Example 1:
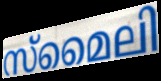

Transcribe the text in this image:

സ്മൈലി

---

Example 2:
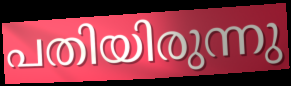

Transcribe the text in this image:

പതിയിരുന്നു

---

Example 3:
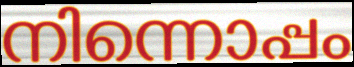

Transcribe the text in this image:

നിന്നൊപ്പം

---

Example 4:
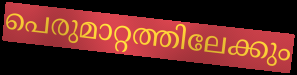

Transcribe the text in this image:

പെരുമാറ്റത്തിലേക്കും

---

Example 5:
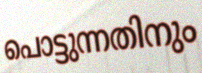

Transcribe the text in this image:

പൊട്ടുന്നതിനും